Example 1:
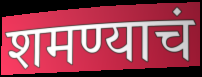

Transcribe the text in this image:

शमण्याचं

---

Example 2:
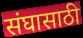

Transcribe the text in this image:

संघासाठी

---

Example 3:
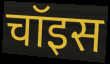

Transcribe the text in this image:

चॉइस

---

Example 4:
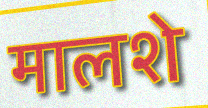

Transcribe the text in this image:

मालशे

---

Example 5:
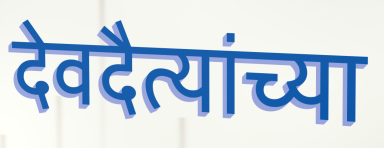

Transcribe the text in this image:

देवदैत्यांच्या